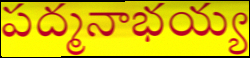
పద్మనాభయ్య